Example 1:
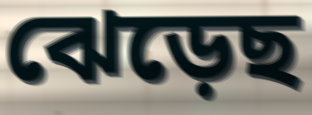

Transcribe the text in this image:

ঝেড়েছ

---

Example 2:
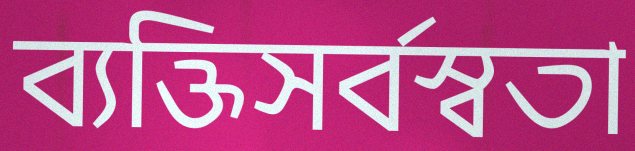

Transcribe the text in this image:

ব্যক্তিসর্বস্বতা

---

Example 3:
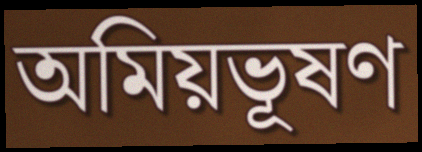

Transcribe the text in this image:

অমিয়ভূষণ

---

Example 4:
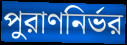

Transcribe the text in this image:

পুরাণনির্ভর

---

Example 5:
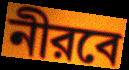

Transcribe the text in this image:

নীরবে